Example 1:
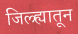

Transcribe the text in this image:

जिल्ह्यातून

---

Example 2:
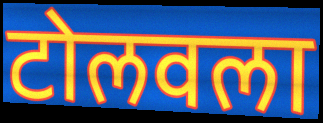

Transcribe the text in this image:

टोलवला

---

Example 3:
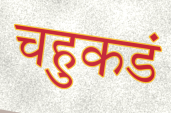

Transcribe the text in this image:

चहुकडं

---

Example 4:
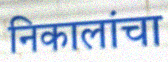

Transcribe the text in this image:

निकालांचा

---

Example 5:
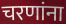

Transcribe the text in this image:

चरणांना